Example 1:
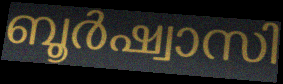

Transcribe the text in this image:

ബൂർഷ്വാസി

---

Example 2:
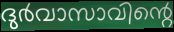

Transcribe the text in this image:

ദുർവാസാവിന്റെ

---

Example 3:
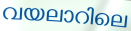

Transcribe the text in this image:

വയലാറിലെ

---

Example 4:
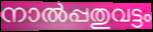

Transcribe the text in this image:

നാൽപ്പതുവട്ടം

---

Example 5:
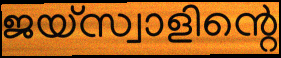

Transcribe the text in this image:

ജയ്സ്വാളിന്റെ